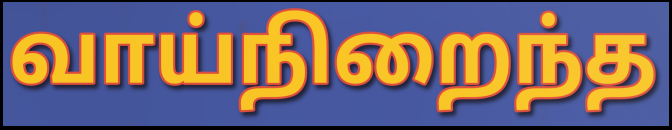
வாய்நிறைந்த